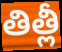
తిత్లీ